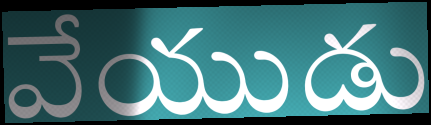
వేయుడు